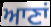
ਆਣਾਂ